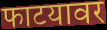
फाटयावर